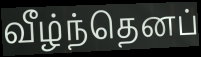
வீழ்ந்தெனப்